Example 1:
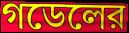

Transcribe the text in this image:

গডেলের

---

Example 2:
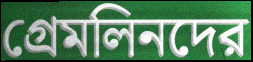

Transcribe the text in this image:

গ্রেমলিনদের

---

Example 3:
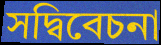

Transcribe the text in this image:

সদ্বিবেচনা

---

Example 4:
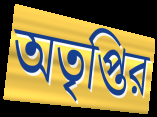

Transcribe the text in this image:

অতৃপ্তির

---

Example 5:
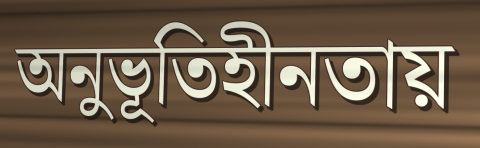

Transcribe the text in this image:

অনুভূতিহীনতায়